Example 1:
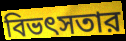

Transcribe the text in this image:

বিভৎসতার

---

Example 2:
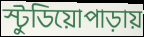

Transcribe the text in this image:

স্টুডিয়োপাড়ায়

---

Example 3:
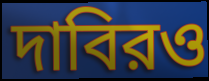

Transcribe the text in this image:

দাবিরও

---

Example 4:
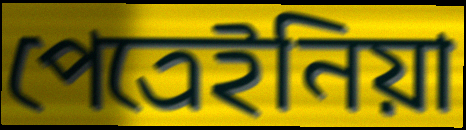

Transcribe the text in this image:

পেত্রেইনিয়া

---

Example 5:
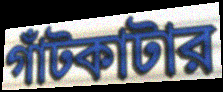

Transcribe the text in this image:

গাঁটকাটার